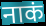
नाकं